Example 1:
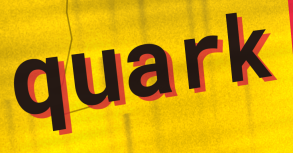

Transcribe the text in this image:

quark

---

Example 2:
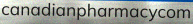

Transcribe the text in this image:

canadianpharmacycom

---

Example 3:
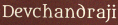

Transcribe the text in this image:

Devchandraji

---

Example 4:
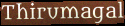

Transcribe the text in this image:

Thirumagal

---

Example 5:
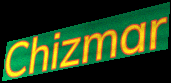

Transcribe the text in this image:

Chizmar